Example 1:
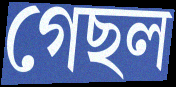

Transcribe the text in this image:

গেছল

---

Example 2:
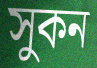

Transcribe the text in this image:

সুকন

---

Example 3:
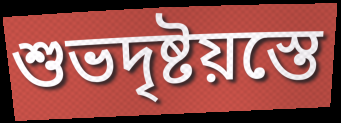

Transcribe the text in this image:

শুভদৃষ্টয়স্তে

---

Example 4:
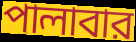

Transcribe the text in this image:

পালাবার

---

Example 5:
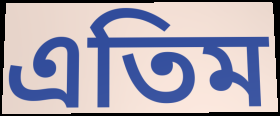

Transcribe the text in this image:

এতিম